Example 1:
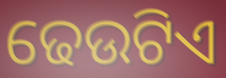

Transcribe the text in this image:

ଢେଉଟିଏ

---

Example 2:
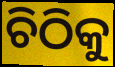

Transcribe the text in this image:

ଚିଠିକୁ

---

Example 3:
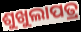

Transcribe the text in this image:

ଶୁଖୁଲାପତ୍ର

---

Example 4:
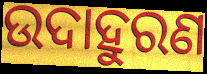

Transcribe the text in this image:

ଉଦାହୁରଣ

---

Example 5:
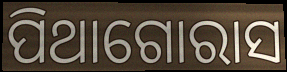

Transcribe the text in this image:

ପିଥାଗୋରାସ